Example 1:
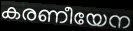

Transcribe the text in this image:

കരണീയേന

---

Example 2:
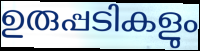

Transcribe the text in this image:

ഉരുപ്പടികളും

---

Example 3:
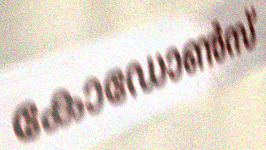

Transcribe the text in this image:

കോഡോൺസ്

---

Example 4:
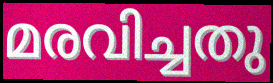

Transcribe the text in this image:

മരവിച്ചതു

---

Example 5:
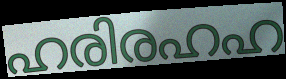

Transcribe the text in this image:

ഹരിരഹഹ